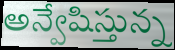
అన్వేషిస్తున్న